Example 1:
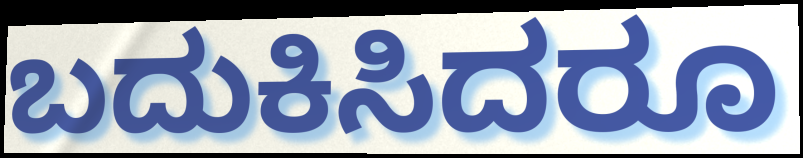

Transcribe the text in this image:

ಬದುಕಿಸಿದರೂ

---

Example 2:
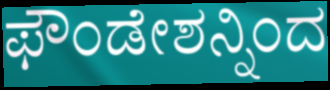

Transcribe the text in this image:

ಫೌಂಡೇಶನ್ನಿಂದ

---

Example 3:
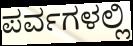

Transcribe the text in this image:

ಪರ್ವಗಳಲ್ಲಿ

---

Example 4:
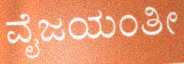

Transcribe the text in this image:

ವೈಜಯಂತೀ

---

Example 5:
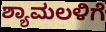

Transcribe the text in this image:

ಶ್ಯಾಮಲಳಿಗೆ